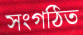
সংগঠিত